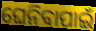
ଘେନିବାପାଇଁ